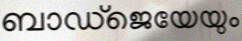
ബാഡ്ജെയേയും